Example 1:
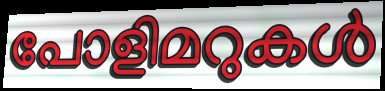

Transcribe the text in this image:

പോളിമറുകൾ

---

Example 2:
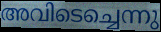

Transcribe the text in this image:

അവിടെച്ചെന്നു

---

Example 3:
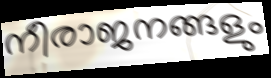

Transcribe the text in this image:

നീരാജനങ്ങളും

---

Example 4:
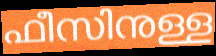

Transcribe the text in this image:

ഫീസിനുള്ള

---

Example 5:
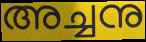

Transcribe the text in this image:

അച്ചനു